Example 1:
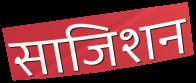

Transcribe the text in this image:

साजिशन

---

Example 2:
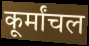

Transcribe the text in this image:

कूर्मांचल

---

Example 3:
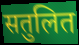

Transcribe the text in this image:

सतुलित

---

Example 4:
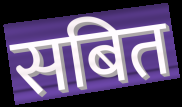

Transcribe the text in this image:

सबित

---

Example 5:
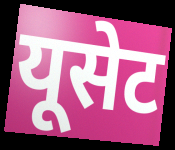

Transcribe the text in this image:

यूसेट